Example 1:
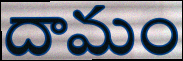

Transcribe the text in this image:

దామం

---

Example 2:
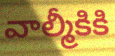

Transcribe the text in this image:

వాల్మీకికి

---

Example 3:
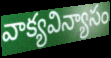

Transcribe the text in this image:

వాక్యవిన్యాసం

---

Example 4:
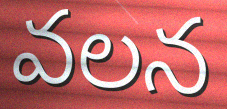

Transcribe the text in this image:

వలన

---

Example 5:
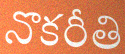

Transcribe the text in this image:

నొకరీతి